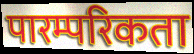
पारम्परिकता